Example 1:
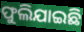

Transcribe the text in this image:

ଫୁଲିଯାଇଛି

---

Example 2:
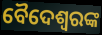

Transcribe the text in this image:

ବୈଦେଶ୍ୱରଙ୍କ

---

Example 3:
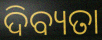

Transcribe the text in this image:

ଦିବ୍ୟତା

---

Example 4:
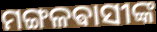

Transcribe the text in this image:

ମଙ୍ଗଳଵାସୀଙ୍କ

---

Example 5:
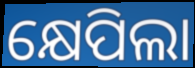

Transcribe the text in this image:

କ୍ଷେପିଲା